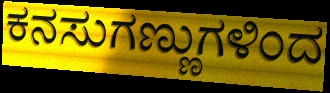
ಕನಸುಗಣ್ಣುಗಳಿಂದ